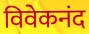
विवेकनंद